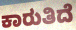
ಕಾರುತಿದೆ